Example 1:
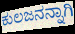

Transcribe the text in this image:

ಕುಲಜನನ್ನಾಗಿ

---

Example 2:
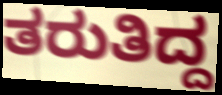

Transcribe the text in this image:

ತರುತಿದ್ದ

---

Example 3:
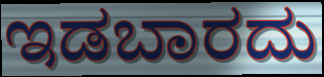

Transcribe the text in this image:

ಇಡಬಾರದು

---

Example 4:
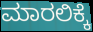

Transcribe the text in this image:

ಮಾರಲಿಕ್ಕೆ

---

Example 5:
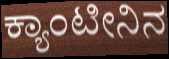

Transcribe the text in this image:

ಕ್ಯಾಂಟೀನಿನ